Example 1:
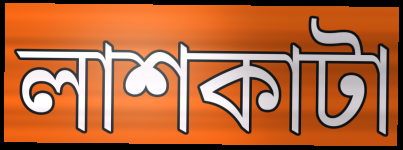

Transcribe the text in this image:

লাশকাটা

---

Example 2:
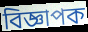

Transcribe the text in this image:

বিজ্ঞাপক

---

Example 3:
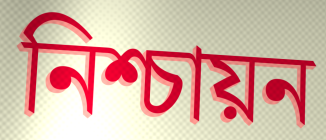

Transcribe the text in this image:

নিশ্চায়ন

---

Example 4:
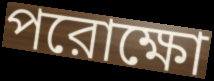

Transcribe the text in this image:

পরোক্ষো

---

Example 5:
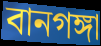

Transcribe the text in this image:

বানগঙ্গা